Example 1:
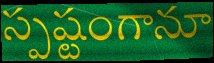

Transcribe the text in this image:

స్పష్టంగానూ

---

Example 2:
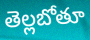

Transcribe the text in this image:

తెల్లబోతూ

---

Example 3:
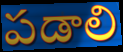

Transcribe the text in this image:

పడాలి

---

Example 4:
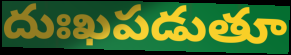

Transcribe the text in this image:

దుఃఖపడుతూ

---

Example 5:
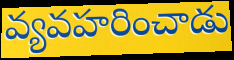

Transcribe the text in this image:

వ్యవహరించాడు